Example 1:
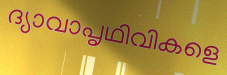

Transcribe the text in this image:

ദ്യാവാപൃഥിവികളെ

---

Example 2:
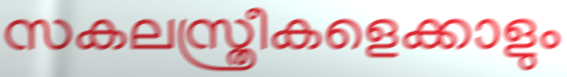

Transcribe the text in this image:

സകലസ്ത്രീകളെക്കാളും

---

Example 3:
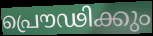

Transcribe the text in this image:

പ്രൌഢിക്കും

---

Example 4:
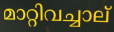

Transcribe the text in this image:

മാറ്റിവച്ചാല്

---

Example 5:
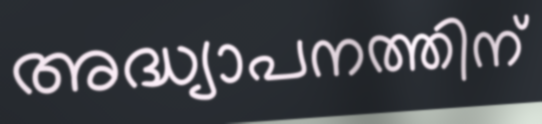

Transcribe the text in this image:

അദ്ധ്യാപനത്തിന്